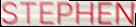
STEPHEN